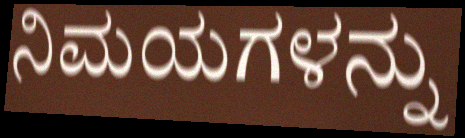
ನಿಮಯಗಳನ್ನು